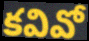
కవివో